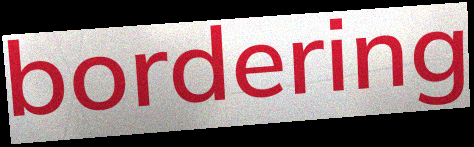
bordering